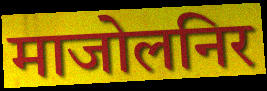
माजोलनिर